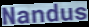
Nandus